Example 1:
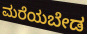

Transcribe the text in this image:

ಮರೆಯಬೇಡ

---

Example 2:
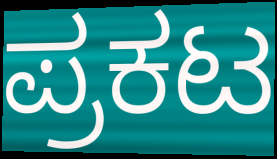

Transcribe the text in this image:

ಪ್ರಕಟ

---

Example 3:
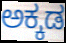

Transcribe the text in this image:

ಅಕ್ಕಡ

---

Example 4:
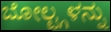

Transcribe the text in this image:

ಬೋಲ್ಟ್ಗಳನ್ನು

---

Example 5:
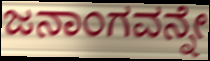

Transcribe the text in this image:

ಜನಾಂಗವನ್ನೇ